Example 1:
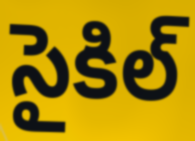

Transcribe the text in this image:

సైకిల్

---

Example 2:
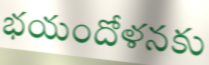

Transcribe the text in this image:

భయందోళనకు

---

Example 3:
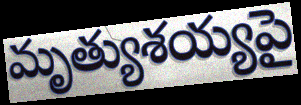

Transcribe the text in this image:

మృత్యుశయ్యపై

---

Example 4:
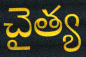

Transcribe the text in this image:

చైత్య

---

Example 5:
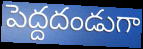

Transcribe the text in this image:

పెద్దదండుగా